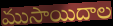
ముసాయిదాల